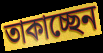
তাকাচ্ছেন